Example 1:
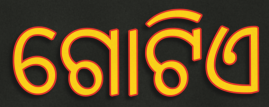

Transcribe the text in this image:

ଗୋଟିଏ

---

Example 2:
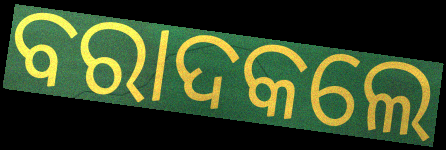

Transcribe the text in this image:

ବରାଦକଲେ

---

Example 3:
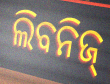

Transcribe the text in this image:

ଲିବନିଜ୍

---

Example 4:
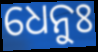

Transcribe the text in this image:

ଧେନୁଃ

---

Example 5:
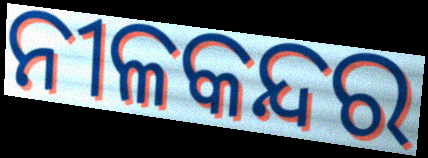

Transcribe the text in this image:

ନୀଳକନ୍ଦର